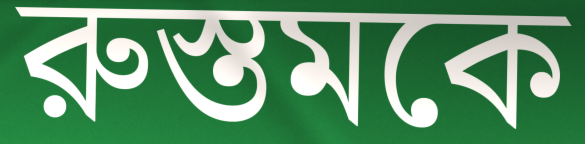
রুস্তমকে